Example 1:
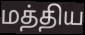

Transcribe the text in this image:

மத்திய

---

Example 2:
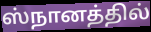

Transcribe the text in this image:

ஸ்நானத்தில்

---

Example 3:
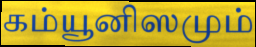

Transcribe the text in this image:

கம்யூனிஸமும்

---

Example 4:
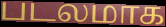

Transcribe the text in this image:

படலமாக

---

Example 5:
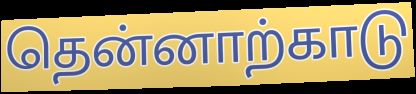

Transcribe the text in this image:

தென்னாற்காடு